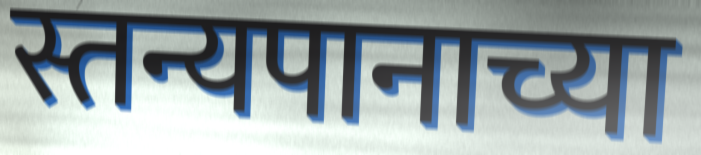
स्तन्यपानाच्या